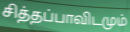
சித்தப்பாவிடமும்